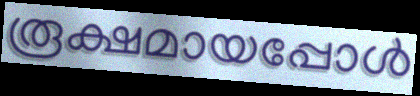
രൂക്ഷമായപ്പോൾ